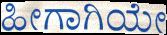
ಹೀಗಾಗಿಯೇ